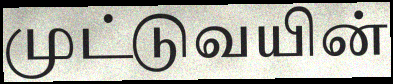
முட்டுவயின்